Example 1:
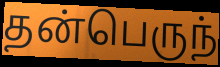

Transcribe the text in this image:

தன்பெருந்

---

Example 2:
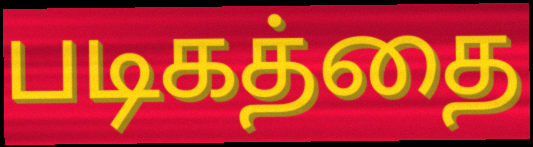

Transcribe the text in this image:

படிகத்தை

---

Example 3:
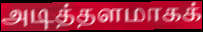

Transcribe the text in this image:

அடித்தளமாகக்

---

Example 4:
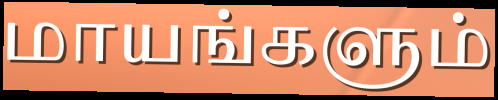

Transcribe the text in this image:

மாயங்களும்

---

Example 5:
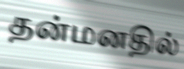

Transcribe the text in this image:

தன்மனதில்